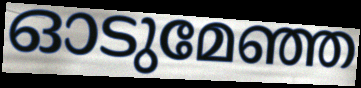
ഓടുമേഞ്ഞ